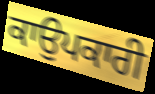
ਕਾਉਪਕਾਰੀ